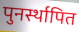
पुनर्स्थापित